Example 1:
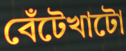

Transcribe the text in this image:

বেঁটেখাটো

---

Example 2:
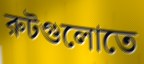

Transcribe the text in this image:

রুটগুলোতে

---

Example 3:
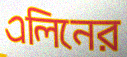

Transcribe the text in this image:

এলিনের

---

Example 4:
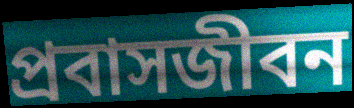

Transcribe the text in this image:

প্রবাসজীবন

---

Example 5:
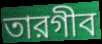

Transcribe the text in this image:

তারগীব